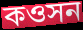
কওসন